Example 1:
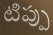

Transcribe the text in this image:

టిప్పు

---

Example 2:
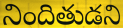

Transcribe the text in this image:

నిందితుడని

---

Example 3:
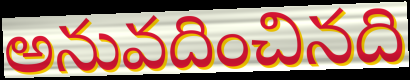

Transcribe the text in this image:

అనువదించినది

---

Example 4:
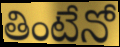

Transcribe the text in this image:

తింటేనో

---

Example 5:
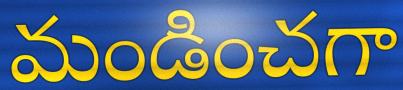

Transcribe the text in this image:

మండించగా